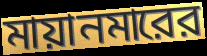
মায়ানমারের